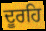
ਦੂਰਹਿ